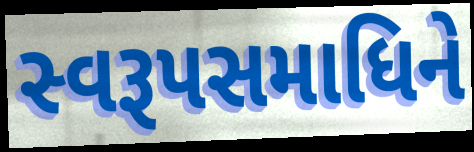
સ્વરૂપસમાધિને